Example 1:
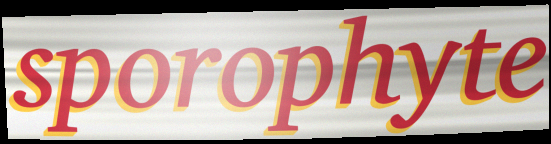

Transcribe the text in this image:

sporophyte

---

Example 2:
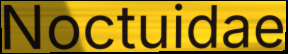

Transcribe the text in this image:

Noctuidae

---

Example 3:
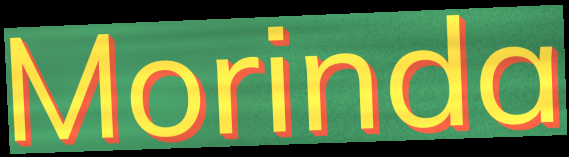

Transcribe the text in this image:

Morinda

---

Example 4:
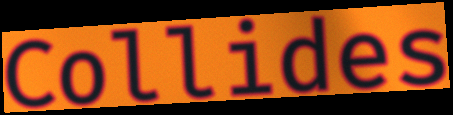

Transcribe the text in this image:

Collides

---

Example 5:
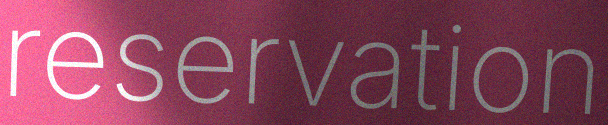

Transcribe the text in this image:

reservation